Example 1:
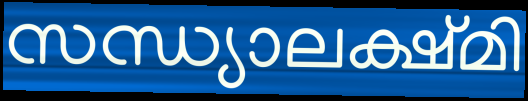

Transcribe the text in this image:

സന്ധ്യാലക്ഷ്മി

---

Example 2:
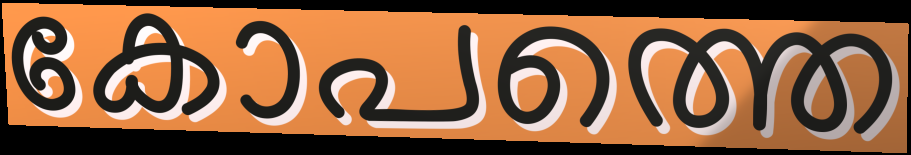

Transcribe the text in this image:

കോപത്തെ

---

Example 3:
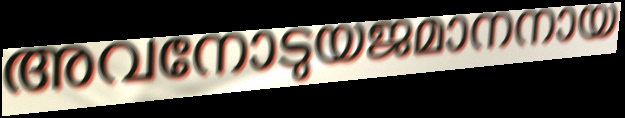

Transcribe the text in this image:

അവനോടുയജമാനനായ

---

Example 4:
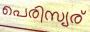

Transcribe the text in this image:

പെരിസ്യര്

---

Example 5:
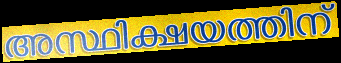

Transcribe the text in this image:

അസ്ഥിക്ഷയത്തിന്